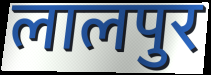
लालपुर